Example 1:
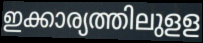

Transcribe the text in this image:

ഇക്കാര്യത്തിലുളള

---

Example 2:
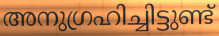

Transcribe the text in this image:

അനുഗ്രഹിച്ചിട്ടുണ്ട്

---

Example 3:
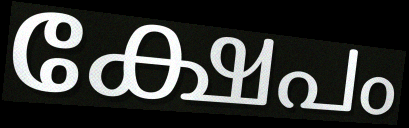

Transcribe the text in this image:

ക്ഷേപം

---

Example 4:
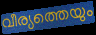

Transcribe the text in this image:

വീര്യത്തെയും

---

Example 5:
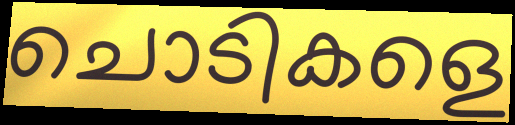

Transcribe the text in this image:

ചൊടികളെ